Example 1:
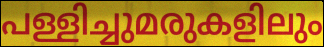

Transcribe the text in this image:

പള്ളിച്ചുമരുകളിലും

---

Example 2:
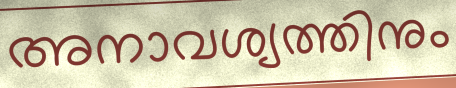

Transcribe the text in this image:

അനാവശ്യത്തിനും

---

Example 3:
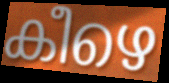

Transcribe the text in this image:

കീഴെ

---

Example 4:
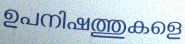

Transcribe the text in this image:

ഉപനിഷത്തുകളെ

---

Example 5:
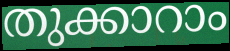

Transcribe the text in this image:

തുക്കാറാം